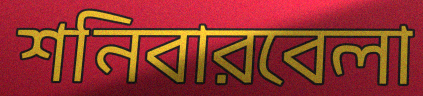
শনিবারবেলা